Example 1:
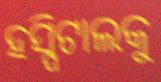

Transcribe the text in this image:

ହସ୍ପିଟାଲକୁ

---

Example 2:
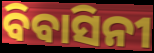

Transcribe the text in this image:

ବିବାସିନୀ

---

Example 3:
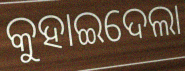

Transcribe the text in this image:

କୁହାଇଦେଲା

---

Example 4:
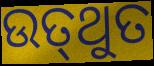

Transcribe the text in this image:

ଉତ୍‌ଥୁତ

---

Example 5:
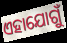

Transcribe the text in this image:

ଏହାଯୋଗୁଁ